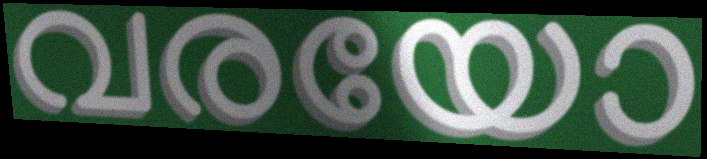
വരയോ